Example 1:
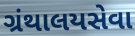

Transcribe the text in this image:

ગ્રંથાલયસેવા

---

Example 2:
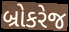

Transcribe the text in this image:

બ્રોકરેજ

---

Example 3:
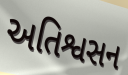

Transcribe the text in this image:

અતિશ્વસન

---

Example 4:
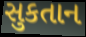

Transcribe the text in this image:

સુકતાન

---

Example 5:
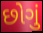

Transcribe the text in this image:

છોગું